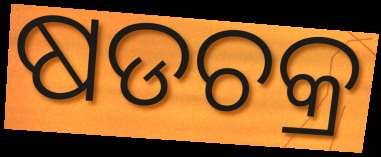
ଷଡଚକ୍ର